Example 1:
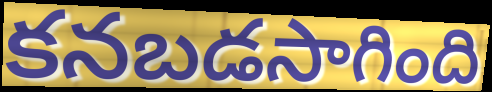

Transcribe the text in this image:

కనబడసాగింది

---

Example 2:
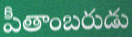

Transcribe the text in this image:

పీతాంబరుడు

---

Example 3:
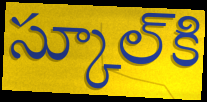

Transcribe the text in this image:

స్కూల్‌కి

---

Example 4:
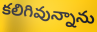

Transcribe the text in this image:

కలిగివున్నాను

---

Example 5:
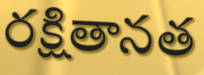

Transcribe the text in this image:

రక్షితానత